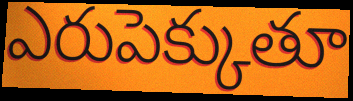
ఎరుపెక్కుతూ